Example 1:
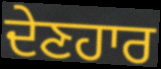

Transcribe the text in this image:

ਦੇਣਹਾਰ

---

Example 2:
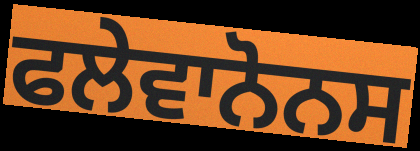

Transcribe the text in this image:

ਫਲੇਵਾਨੋਨਸ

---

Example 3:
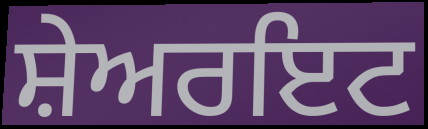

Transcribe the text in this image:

ਸ਼ੇਅਰਇਟ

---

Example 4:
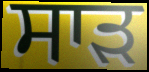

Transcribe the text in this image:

ਸਾਡ਼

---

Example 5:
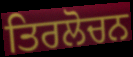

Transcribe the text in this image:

ਤਿਰਲੋਚਨ